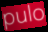
pulo